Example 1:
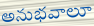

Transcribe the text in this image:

అనుభవాలూ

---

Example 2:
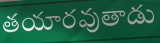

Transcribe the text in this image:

తయారవుతాడు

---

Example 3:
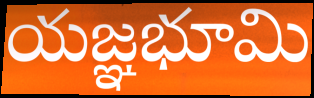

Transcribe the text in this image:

యజ్ఞభూమి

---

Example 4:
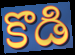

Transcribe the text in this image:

కొడి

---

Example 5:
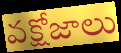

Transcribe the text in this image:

వక్షోజాలు